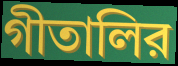
গীতালির